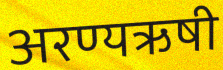
अरण्यऋषी